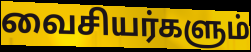
வைசியர்களும்